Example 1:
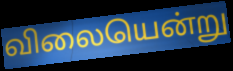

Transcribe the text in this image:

விலையென்று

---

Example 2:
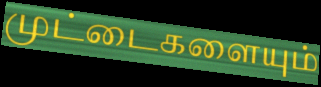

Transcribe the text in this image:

முட்டைகளையும்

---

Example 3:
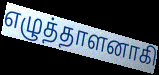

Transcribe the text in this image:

எழுத்தாளனாகி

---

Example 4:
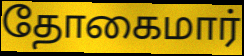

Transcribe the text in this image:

தோகைமார்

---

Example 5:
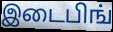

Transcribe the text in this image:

இடைபிங்